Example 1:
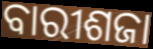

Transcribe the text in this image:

ବାରୀଶଜା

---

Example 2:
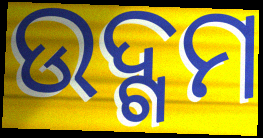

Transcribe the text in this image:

ଉଦ୍ଗମ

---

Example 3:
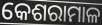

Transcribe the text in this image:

କେଶରାମାଳ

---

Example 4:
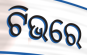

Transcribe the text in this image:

ଟିଭରେ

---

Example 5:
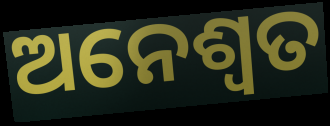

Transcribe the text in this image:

ଅନେଶ୍ଵତ